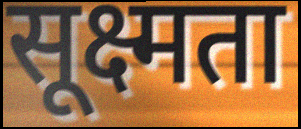
सूक्ष्मता